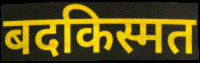
बदकिस्मत